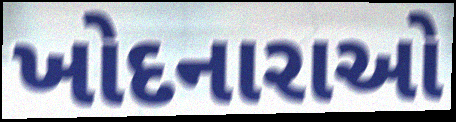
ખોદનારાઓ